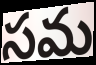
సమ